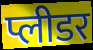
प्लीडर